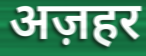
अज़हर